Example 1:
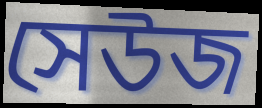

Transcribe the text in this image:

সেউজ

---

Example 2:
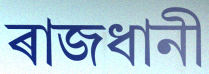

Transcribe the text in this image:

ৰাজধানী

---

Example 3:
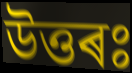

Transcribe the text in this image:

উত্তৰঃ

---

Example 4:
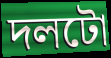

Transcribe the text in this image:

দলটো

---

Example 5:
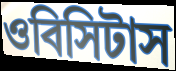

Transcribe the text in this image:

ওবিসিটাস